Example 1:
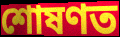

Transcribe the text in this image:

শোষণত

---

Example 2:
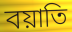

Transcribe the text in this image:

বয়াতি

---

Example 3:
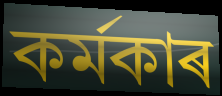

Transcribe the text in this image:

কৰ্মকাৰ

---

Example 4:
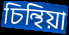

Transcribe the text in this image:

চিন্থিয়া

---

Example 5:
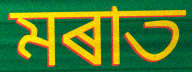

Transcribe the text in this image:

মৰাত